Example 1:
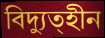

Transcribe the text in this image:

বিদ্যুত্হীন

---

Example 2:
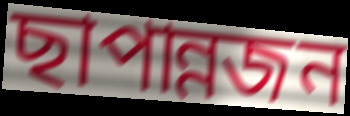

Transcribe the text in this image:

ছাপান্নজন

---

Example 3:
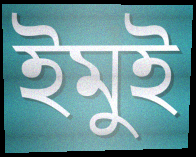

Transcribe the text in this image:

ইমুই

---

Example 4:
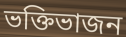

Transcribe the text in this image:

ভক্তিভাজন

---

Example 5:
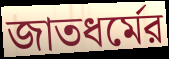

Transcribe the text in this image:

জাতধর্মের